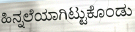
ಹಿನ್ನಲೆಯಾಗಿಟ್ಟುಕೊಂಡು